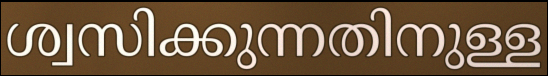
ശ്വസിക്കുന്നതിനുള്ള